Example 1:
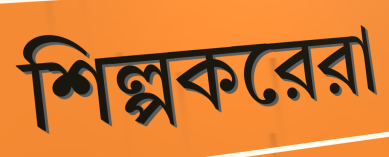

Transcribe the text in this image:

শিল্পকরেরা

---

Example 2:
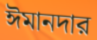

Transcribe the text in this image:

ঈমানদার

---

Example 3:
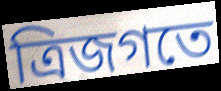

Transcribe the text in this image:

ত্রিজগতে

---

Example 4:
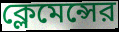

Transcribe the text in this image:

ক্লেমেন্সের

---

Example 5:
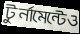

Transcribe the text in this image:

টুর্নামেন্টেও